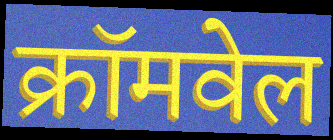
क्रॉमवेल